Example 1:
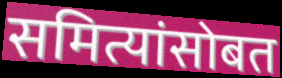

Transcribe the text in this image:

समित्यांसोबत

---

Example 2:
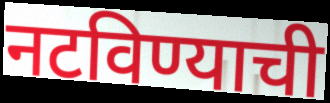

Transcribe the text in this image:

नटविण्याची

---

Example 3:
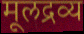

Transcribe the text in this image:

मूलद्रव्य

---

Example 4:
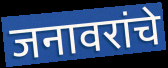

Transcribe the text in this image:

जनावरांचे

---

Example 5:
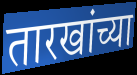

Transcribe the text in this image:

तारखांच्या